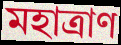
মহাত্রাণ